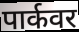
पार्कवर